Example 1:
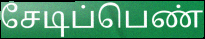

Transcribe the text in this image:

சேடிப்பெண்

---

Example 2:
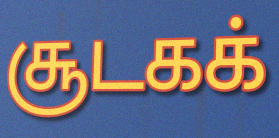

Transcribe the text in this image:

சூடகக்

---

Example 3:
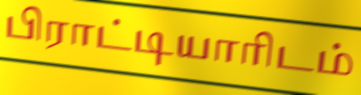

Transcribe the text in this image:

பிராட்டியாரிடம்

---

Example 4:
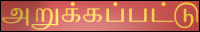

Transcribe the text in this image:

அறுக்கப்பட்டு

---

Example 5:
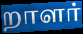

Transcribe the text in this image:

றாளர்